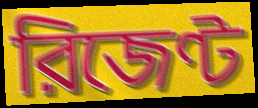
রিজেণ্ট